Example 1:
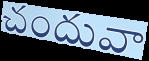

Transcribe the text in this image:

చందువా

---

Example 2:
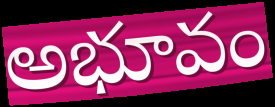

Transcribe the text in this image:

అభూవం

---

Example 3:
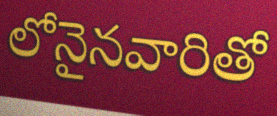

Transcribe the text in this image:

లోనైనవారితో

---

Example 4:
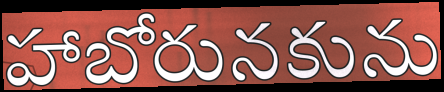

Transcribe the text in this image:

హాబోరునకును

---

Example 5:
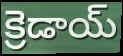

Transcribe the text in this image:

క్రెడాయ్